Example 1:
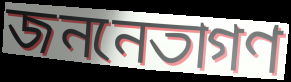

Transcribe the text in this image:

জননেতাগণ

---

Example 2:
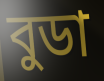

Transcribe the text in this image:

বুডা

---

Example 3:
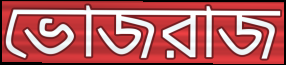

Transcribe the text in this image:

ভোজরাজ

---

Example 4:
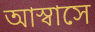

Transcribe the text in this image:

আস্বাসে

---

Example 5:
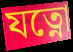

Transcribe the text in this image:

যত্নো